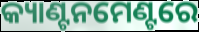
କ୍ୟାଣ୍ଟନମେଣ୍ଟରେ